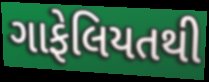
ગાફેલિયતથી